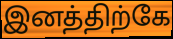
இனத்திற்கே